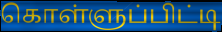
கொள்ளுப்பிட்டி